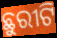
ଛୁରୀଟି